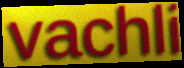
vachli